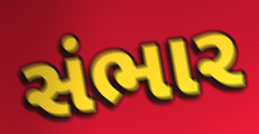
સંભાર